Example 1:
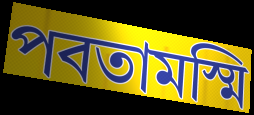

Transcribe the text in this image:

পবতামস্মি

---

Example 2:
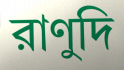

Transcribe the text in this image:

রাণুদি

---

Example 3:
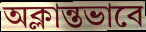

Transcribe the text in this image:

অক্লান্তভাবে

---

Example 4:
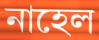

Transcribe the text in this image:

নাহেল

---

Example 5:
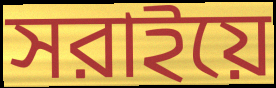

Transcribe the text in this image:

সরাইয়ে